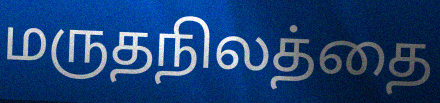
மருதநிலத்தை